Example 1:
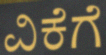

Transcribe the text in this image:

ವಿಕೆಗೆ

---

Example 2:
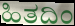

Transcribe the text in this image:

ಹಿತದಿಂ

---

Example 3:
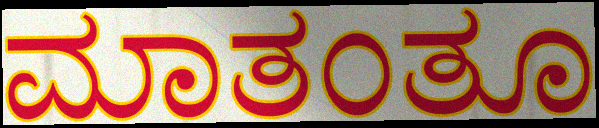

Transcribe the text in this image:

ಮಾತಂತೂ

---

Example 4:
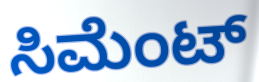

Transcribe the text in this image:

ಸಿಮೆಂಟ್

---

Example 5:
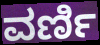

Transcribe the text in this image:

ವರ್ಣಿ